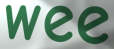
wee